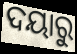
ଦୟାରୁ